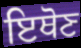
ਇਥੋਣ